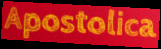
Apostolica